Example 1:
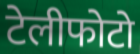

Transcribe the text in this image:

टेलीफोटो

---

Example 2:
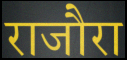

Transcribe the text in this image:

राजौरा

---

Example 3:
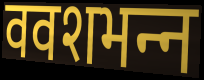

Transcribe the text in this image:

ववशभन्न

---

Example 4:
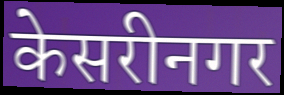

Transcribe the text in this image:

केसरीनगर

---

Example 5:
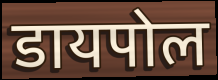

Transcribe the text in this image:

डायपोल